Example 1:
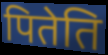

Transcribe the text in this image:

पितेति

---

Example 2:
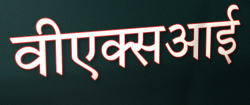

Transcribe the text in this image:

वीएक्सआई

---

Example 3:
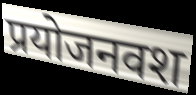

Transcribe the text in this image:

प्रयोजनवश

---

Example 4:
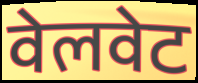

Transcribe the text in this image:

वेलवेट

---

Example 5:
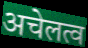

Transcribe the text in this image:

अचेलत्व